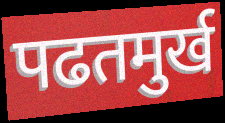
पढतमुर्ख